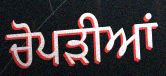
ਚੋਪੜੀਆਂ